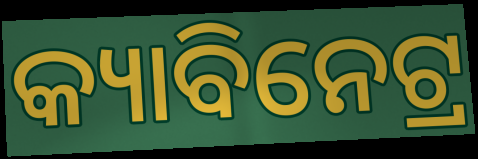
କ୍ୟାବିନେଟ୍ର